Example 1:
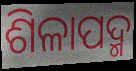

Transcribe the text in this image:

ଶିଳାପଦ୍ମ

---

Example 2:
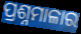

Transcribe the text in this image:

ପ୍ରଶ୍ନମାଳାର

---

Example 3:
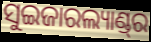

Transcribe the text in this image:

ସୁଇଜାରଲ୍ୟାଣ୍ଡ୍‌ର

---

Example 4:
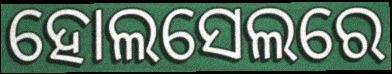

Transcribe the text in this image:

ହୋଲସେଲରେ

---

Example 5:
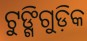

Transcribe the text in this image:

ଟୁଙ୍ଗିଗୁଡ଼ିକ